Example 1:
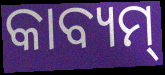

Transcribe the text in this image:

କାବ୍ୟମ୍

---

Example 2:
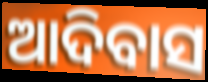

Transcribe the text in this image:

ଆଦିବାସ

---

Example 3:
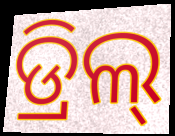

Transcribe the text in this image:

ଡ୍ରିଲ୍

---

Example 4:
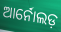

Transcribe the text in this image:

ଆର୍ନୋଲଡ଼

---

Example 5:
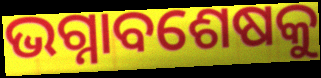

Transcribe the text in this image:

ଭଗ୍ନାବଶେଷକୁ